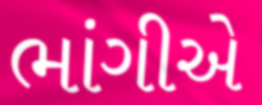
ભાંગીએ